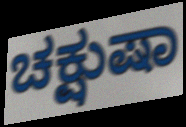
ಚಕ್ಷುಷಾ